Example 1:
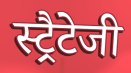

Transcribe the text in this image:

स्ट्रैटेजी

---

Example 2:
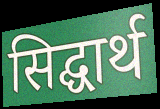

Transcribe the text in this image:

सिद्घार्थ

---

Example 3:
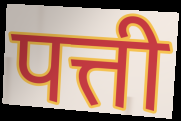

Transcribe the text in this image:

पत्ती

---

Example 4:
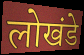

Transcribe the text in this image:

लोखंडे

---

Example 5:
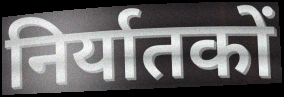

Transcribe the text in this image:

निर्यातकों